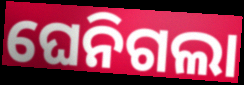
ଘେନିଗଲା